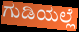
ಗುಡಿಯಲ್ಲೆ